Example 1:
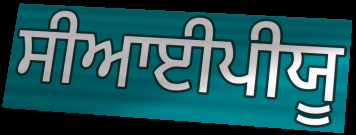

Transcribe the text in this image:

ਸੀਆਈਪੀਯੂ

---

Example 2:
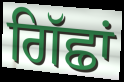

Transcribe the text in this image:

ਗਿੱਛਾਂ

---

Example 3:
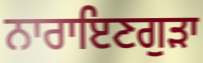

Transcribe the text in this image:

ਨਾਰਾਇਣਗੁੜਾ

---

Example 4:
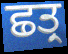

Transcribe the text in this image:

ਛਤ੍ਰ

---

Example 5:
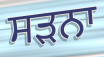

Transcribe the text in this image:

ਸੜਨਾ